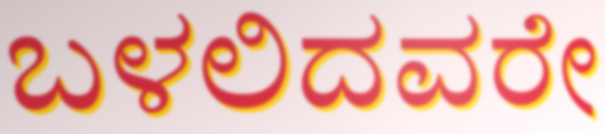
ಬಳಲಿದವರೇ